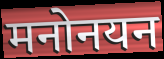
मनोनयन